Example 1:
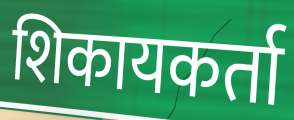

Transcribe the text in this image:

शिकायकर्ता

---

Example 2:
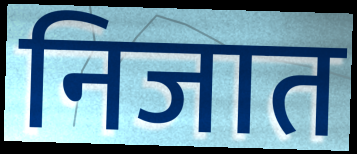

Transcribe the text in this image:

निजात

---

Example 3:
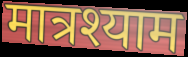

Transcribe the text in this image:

मात्रश्याम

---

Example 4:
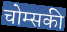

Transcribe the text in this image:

चोम्सकी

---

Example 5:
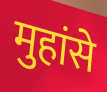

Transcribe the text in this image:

मुहांसे